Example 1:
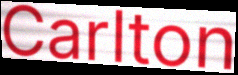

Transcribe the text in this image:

Carlton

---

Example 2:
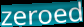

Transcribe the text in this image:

zeroed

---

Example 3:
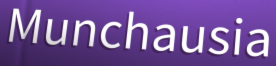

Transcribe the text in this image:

Munchausia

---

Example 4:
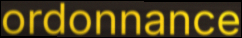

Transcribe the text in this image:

ordonnance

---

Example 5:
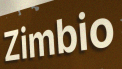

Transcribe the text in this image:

Zimbio